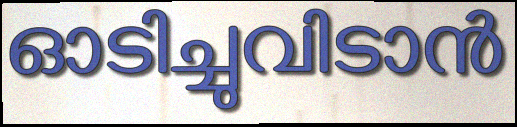
ഓടിച്ചുവിടാൻ